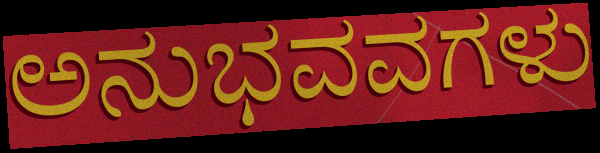
ಅನುಭವವಗಳು